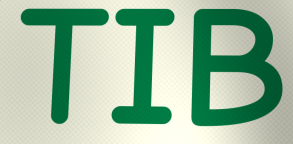
TIB